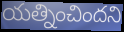
యత్నించిందని